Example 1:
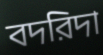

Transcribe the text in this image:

বদরিদা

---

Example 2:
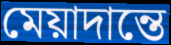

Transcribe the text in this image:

মেয়াদান্তে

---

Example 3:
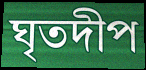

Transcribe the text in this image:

ঘৃতদীপ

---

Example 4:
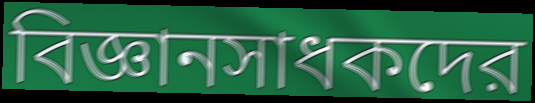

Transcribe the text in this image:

বিজ্ঞানসাধকদের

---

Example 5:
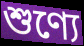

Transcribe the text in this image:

শুণ্যে